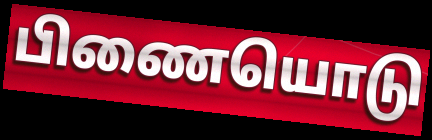
பிணையொடு